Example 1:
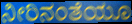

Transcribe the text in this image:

ನೀರಿನಂತೆಯೂ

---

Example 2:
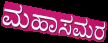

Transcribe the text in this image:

ಮಹಾಸಮರ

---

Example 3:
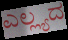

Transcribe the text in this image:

ಎಲ್ಲ್ಯದ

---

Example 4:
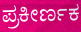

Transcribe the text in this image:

ಪ್ರಕೀರ್ಣಕ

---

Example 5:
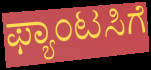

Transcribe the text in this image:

ಫ್ಯಾಂಟಸಿಗೆ